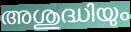
അശുദ്ധിയും